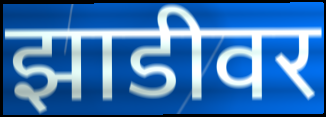
झाडीवर